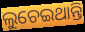
ଲୁଚେଇଥାନ୍ତି